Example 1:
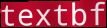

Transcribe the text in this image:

textbf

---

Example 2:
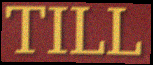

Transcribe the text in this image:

TILL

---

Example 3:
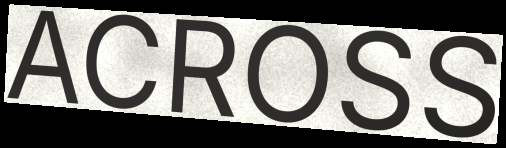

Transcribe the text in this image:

ACROSS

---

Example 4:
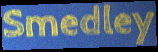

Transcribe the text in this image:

Smedley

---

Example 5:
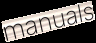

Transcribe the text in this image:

manuals